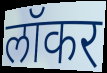
लॉकर